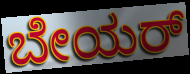
ಬೇಯರ್